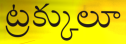
ట్రక్కులూ